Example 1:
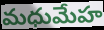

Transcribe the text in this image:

మధుమేహ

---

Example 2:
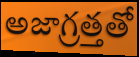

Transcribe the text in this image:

అజాగ్రత్తతో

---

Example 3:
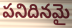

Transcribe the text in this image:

పనిదినమై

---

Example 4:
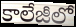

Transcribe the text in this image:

కాలేజీలో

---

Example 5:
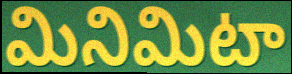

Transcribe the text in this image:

మినిమిటా